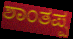
ಶಾಂತಪ್ಪ